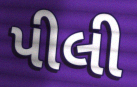
પીલી